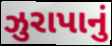
ઝુરાપાનું